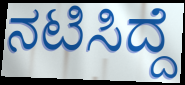
ನಟಿಸಿದ್ದೆ